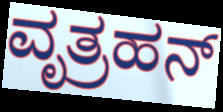
ವೃತ್ರಹನ್